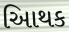
આિથક